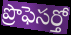
ప్రొఫెసర్తో